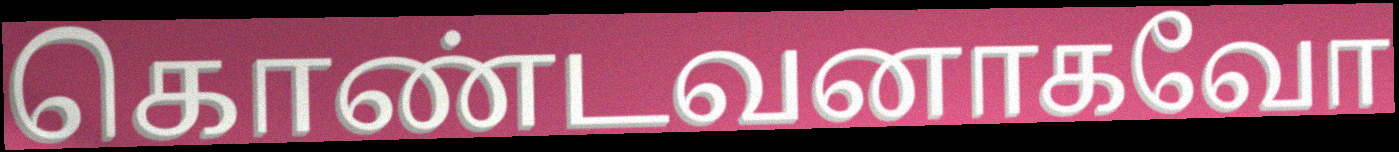
கொண்டவனாகவோ